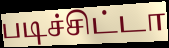
படிச்சிட்டா